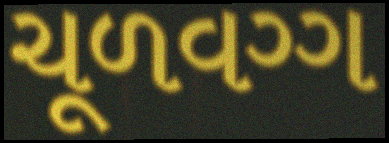
ચૂળવગ્ગ